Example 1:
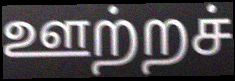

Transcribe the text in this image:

ஊற்றச்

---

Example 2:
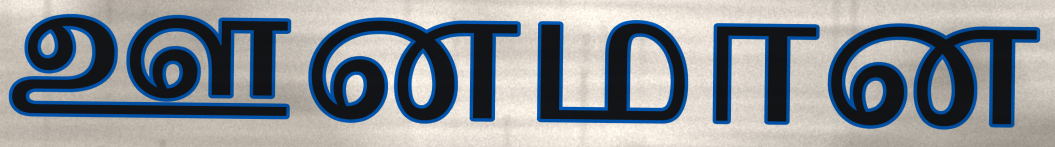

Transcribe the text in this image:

ஊனமான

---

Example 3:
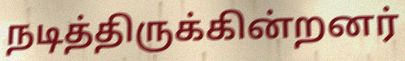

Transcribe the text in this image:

நடித்திருக்கின்றனர்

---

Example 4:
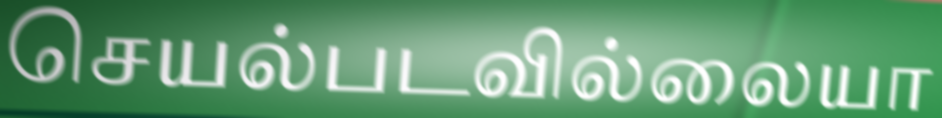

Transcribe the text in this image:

செயல்படவில்லையா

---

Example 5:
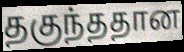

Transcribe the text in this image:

தகுந்ததான